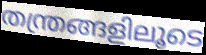
തന്ത്രങ്ങളിലൂടെ